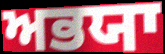
ਅਭਯਾ